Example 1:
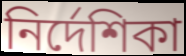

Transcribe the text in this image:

নিৰ্দেশিকা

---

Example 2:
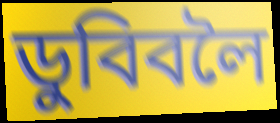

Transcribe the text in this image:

ডুবিবলৈ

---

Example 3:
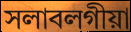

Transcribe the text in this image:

সলাবলগীয়া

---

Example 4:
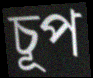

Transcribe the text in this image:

চূপ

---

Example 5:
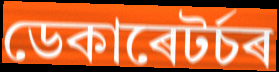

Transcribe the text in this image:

ডেকাৰেটৰ্চৰ